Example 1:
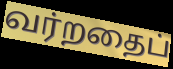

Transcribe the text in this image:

வர்றதைப்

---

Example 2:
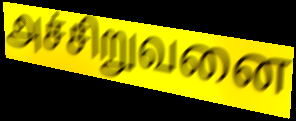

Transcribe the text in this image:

அச்சிறுவனை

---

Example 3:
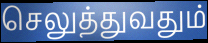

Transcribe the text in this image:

செலுத்துவதும்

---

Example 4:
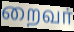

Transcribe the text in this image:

றைவர்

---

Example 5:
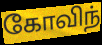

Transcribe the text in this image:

கோவிந்